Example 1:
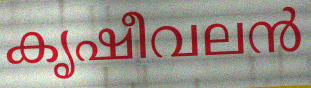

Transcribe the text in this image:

കൃഷീവലൻ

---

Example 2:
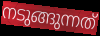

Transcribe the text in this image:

നടുങ്ങുന്നത്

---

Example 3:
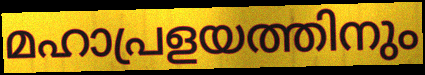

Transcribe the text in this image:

മഹാപ്രളയത്തിനും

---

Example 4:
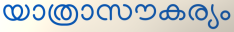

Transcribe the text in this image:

യാത്രാസൗകര്യം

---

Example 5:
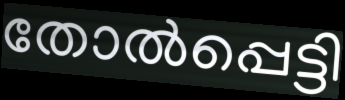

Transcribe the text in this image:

തോൽപ്പെട്ടി